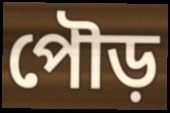
পৌড়